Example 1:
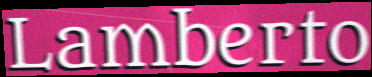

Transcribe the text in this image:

Lamberto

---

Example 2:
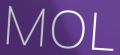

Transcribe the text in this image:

MOL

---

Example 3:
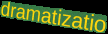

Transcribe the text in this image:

dramatizatio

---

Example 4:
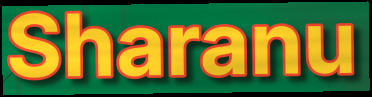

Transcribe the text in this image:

Sharanu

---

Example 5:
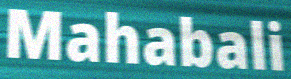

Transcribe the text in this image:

Mahabali